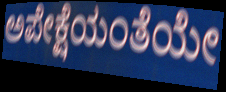
ಅಪೇಕ್ಷೆಯಂತೆಯೇ